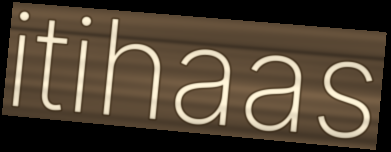
itihaas